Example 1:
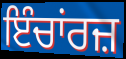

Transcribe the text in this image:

ਇੰਚਾਂਰਜ਼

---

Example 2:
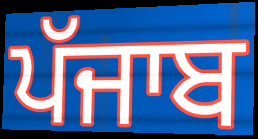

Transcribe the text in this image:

ਪੱਜਾਬ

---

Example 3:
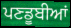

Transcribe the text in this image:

ਪਣਡੂਬੀਆਂ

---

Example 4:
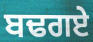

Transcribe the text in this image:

ਬਢਗਏ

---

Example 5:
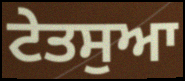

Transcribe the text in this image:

ਟੇਤਸੁਆ